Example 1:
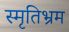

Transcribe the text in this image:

स्मृतिभ्रम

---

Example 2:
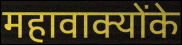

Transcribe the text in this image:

महावाक्योंके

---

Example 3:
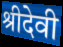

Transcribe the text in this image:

श्रीदेवी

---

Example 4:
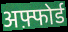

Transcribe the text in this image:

अफ़्फोर्ड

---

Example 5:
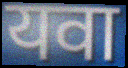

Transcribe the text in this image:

यवा